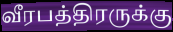
வீரபத்திரருக்கு